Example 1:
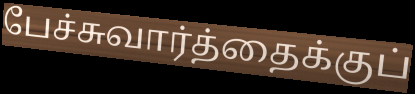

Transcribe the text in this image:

பேச்சுவார்த்தைக்குப்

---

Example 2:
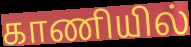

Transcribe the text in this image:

காணியில்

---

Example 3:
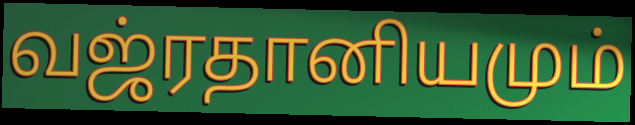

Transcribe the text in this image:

வஜ்ரதானியமும்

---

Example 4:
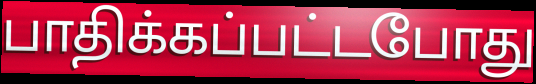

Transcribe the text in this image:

பாதிக்கப்பட்டபோது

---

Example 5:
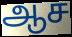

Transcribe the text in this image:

ஆச